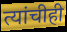
त्यांचीही